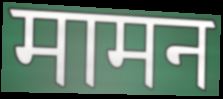
मामन